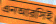
এনআরসিই